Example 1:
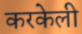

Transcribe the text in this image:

करकेली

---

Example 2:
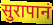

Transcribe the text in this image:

सुरापानं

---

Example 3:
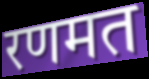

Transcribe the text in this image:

रणमत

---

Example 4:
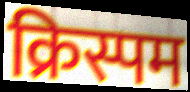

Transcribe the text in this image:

क्रिस्पम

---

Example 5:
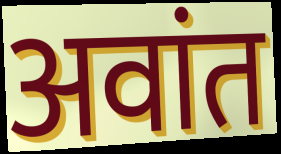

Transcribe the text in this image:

अवांत